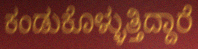
ಕಂಡುಕೊಳ್ಳುತ್ತಿದ್ದಾರೆ